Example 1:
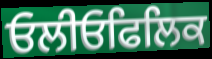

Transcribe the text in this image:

ਓਲੀਓਫਿਲਿਕ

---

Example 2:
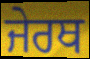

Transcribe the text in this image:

ਜੇਰਥ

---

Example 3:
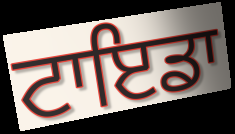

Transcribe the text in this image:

ਟਾਇਡਾ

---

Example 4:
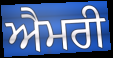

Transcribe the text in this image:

ਐਮਰੀ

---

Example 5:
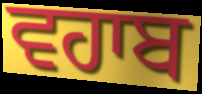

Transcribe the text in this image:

ਵਹਾਬ